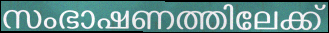
സംഭാഷണത്തിലേക്ക്